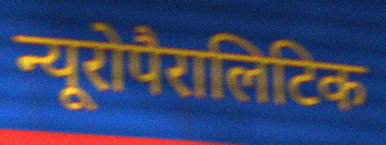
न्यूरोपैरालिटिक